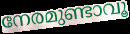
നേരമുണ്ടാവൂ